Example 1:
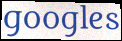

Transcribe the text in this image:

googles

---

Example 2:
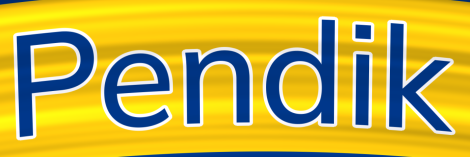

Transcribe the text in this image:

Pendik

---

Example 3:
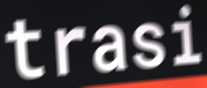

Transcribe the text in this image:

trasi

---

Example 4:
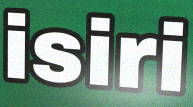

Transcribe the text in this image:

isiri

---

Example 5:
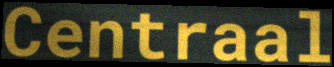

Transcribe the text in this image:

Centraal